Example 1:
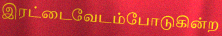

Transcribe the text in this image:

இரட்டைவேடம்போடுகின்ற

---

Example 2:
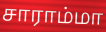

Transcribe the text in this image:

சாராம்மா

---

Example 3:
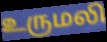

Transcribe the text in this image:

உருமலி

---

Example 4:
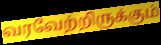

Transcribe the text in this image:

வரவேற்றிருக்கும்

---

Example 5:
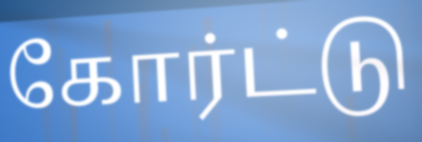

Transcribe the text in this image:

கோர்ட்டு